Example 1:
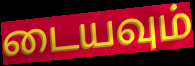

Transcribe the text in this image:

டையவும்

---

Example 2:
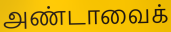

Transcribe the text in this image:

அண்டாவைக்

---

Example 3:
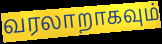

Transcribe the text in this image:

வரலாறாகவும்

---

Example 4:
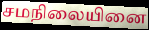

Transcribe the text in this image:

சமநிலையினை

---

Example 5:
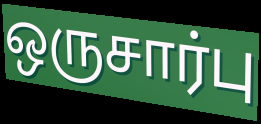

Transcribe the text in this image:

ஒருசார்பு